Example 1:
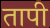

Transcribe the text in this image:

तापी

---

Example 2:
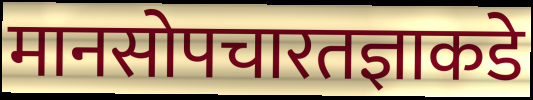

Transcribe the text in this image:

मानसोपचारतज्ञाकडे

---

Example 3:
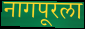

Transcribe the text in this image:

नागपूरला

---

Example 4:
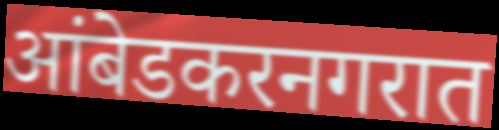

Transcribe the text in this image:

आंबेडकरनगरात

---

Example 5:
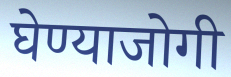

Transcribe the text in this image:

घेण्याजोगी